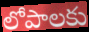
లోపాలకు